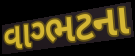
વાગ્ભટના